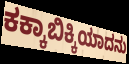
ಕಕ್ಕಾಬಿಕ್ಕಿಯಾದನು